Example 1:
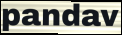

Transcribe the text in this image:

pandav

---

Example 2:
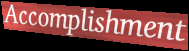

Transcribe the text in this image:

Accomplishment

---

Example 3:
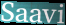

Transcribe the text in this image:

Saavi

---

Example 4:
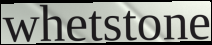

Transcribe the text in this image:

whetstone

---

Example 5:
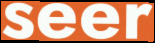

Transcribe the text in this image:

seer